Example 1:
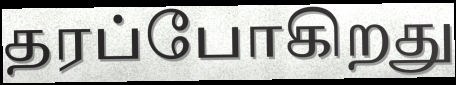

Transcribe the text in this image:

தரப்போகிறது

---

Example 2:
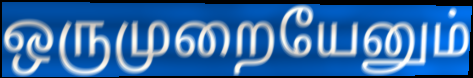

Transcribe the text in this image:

ஒருமுறையேனும்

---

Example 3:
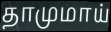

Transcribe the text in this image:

தாமுமாய்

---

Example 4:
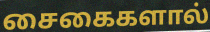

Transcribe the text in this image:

சைகைகளால்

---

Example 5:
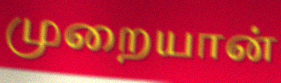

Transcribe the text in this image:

முறையான்